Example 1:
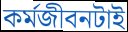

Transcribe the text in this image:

কর্মজীবনটাই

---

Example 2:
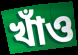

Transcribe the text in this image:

খাঁও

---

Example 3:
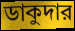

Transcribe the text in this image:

ডাকুদার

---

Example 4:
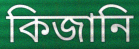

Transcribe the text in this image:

কিজানি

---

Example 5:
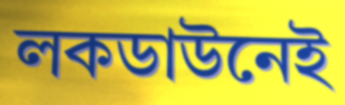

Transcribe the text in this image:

লকডাউনেই